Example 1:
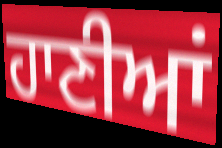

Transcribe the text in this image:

ਹਾਣੀਆਂ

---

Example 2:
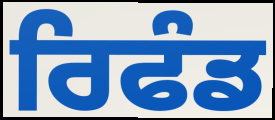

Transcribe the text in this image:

ਰਿਫੰਡ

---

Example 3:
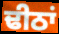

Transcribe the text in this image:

ਢੀਠਾਂ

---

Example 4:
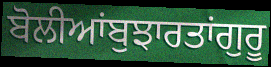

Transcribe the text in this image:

ਬੋਲੀਆਂਬੁਝਾਰਤਾਂਗੁਰੂ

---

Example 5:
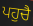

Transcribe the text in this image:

ਪਹੁਚੈ